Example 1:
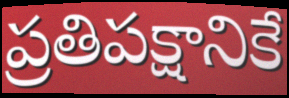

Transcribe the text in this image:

ప్రతిపక్షానికే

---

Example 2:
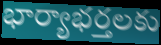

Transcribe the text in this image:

భార్యాభర్తలకు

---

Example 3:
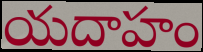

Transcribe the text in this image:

యదాహం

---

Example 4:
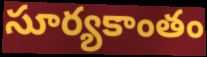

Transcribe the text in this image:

సూర్యకాంతం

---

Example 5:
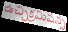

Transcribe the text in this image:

ఉచ్చిక్రమిషన్స